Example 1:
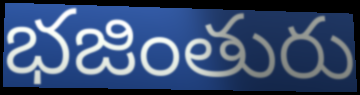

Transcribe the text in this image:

భజింతురు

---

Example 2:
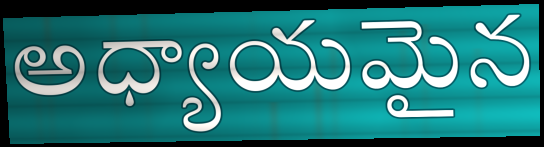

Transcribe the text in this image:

అధ్యాయమైన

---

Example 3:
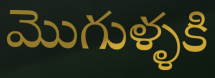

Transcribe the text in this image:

మొగుళ్ళకి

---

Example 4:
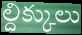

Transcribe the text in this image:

ల్దిక్కులు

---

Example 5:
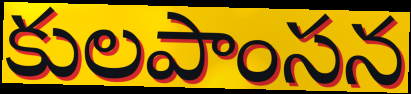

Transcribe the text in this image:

కులపాంసన